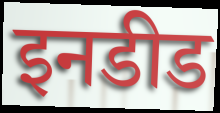
इनडीड